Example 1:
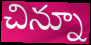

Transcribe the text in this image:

చిన్నూ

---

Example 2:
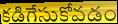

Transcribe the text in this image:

కడిగేసుకోవడం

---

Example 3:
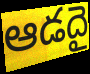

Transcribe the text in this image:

ఆడదై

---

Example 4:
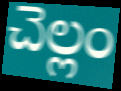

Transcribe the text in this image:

చెల్లం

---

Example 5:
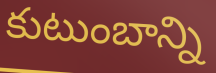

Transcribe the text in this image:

కుటుంబాన్ని